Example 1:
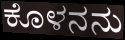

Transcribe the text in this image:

ಕೊಳನನು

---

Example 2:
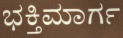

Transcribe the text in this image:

ಭಕ್ತಿಮಾರ್ಗ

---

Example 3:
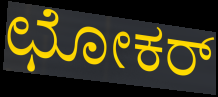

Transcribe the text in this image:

ಛೋಕರ್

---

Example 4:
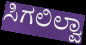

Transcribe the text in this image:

ಸಿಗಲಿಲ್ವಾ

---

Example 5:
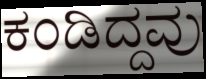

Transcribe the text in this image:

ಕಂಡಿದ್ದವು